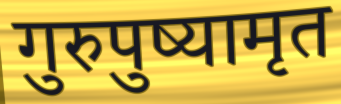
गुरुपुष्यामृत